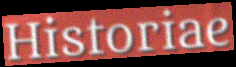
Historiae